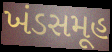
ખંડસમૂહ